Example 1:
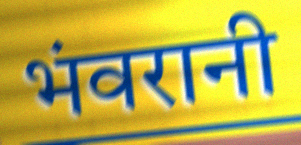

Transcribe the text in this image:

भंवरानी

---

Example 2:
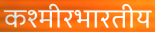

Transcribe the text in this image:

कश्मीरभारतीय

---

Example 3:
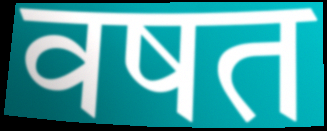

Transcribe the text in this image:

वषत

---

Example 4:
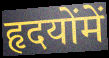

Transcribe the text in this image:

हृदयोंमें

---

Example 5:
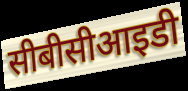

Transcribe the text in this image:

सीबीसीआइडी